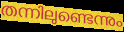
തന്നിലുണ്ടെന്നും